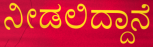
ನೀಡಲಿದ್ದಾನೆ